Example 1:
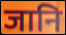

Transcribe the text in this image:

जानि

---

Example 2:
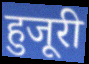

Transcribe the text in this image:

हुजूरी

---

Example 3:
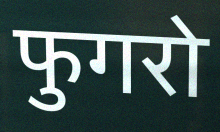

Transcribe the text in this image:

फुगरो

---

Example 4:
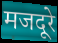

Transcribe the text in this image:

मजदूरे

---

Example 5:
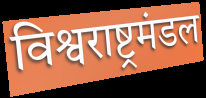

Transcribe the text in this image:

विश्वराष्ट्रमंडल